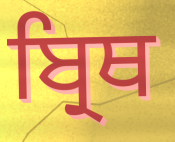
ਬ੍ਰਿਥ